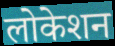
लोकेशन